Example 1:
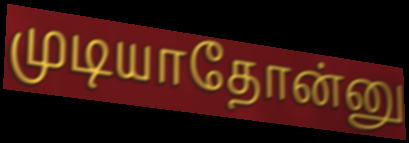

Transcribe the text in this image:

முடியாதோன்னு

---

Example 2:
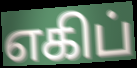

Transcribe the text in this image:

எகிப்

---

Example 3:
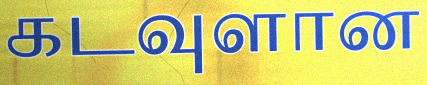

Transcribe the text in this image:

கடவுளான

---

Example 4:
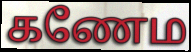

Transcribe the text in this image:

கணேம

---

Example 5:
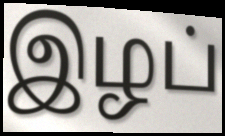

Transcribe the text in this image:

இழப்